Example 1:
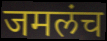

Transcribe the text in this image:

जमलंच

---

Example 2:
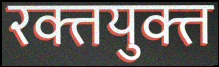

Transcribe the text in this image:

रक्तयुक्त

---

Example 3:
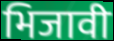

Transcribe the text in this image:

भिजावी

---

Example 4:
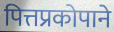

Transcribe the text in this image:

पित्तप्रकोपाने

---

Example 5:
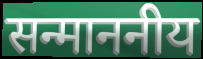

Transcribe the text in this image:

सन्माननीय